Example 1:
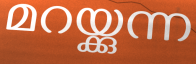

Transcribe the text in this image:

മറയ്ക്കുന്ന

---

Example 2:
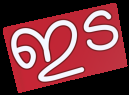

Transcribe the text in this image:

ഇട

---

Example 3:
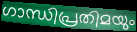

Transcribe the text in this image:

ഗാന്ധിപ്രതിമയും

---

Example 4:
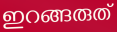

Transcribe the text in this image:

ഇറങ്ങരുത്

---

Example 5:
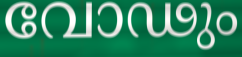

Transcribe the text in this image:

വോഢും